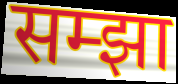
सम्झा